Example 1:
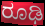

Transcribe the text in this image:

ರೂಢಿ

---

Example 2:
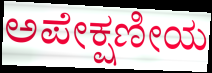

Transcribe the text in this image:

ಅಪೇಕ್ಷಣೀಯ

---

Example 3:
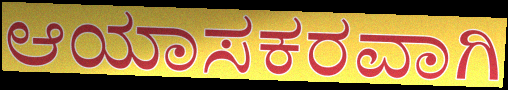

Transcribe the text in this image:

ಆಯಾಸಕರವಾಗಿ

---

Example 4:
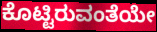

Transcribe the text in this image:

ಕೊಟ್ಟಿರುವಂತೆಯೇ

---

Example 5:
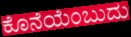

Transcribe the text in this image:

ಕೊನೆಯೆಂಬುದು